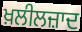
ਖ਼ਲੀਲਜ਼ਾਦ